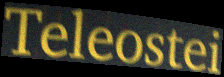
Teleostei